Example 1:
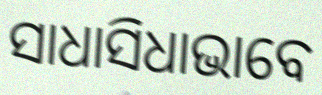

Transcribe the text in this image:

ସାଧାସିଧାଭାବେ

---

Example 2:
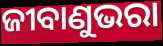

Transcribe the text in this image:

ଜୀବାଣୁଭରା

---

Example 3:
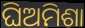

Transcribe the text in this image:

ଘିଅମିଶା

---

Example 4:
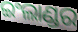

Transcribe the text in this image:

ଇଂଲାଣ୍ଡର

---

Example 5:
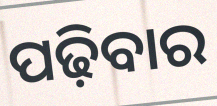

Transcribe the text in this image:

ପଢ଼ିବାର